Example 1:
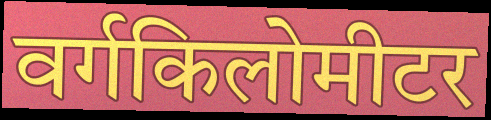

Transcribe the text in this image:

वर्गकिलोमीटर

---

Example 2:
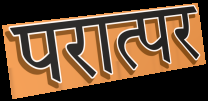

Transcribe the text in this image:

परात्‍पर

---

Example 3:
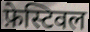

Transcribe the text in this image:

फ़ेस्टिवल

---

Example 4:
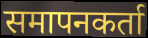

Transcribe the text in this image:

समापनकर्ता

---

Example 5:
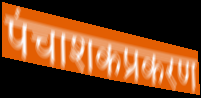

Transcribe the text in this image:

पंचाशकप्रकरण